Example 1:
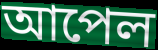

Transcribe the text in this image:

আপেল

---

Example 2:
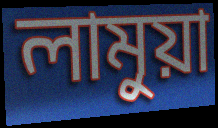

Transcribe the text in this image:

লামুয়া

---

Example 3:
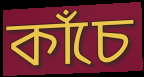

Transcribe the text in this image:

কাঁচে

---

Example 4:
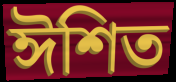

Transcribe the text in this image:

ঈশিত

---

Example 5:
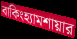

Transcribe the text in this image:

বাকিংহ্যামশায়ার